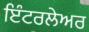
ਇੰਟਰਲੇਅਰ